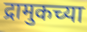
द्रामुकच्या